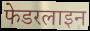
फेडरलाइन